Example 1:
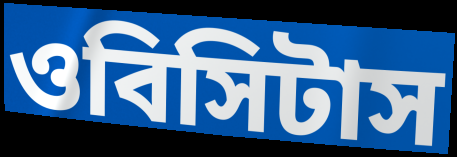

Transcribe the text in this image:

ওবিসিটাস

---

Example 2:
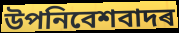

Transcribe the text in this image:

উপনিবেশবাদৰ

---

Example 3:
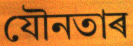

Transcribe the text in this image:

যৌনতাৰ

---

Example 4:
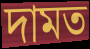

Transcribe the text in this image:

দামত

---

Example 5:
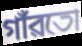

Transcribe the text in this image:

গাঁৱতো